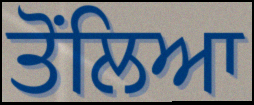
ਤੋਂਲਿਆ